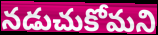
నడుచుకోమని